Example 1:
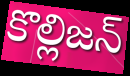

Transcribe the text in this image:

కొల్లిజన్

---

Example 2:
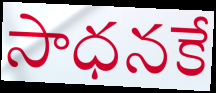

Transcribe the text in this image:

సాధనకే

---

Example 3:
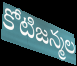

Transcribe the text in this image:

కోటిజన్మల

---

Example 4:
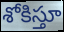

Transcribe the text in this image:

శోకిస్తూ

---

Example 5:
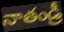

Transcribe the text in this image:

నాతండ్రీ